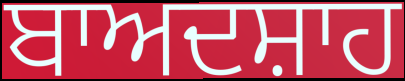
ਬਾਅਦਸ਼ਾਹ